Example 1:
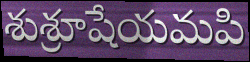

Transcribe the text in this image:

శుశ్రూషేయమపి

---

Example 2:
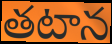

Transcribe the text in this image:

తటాన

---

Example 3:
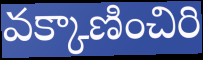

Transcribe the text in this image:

వక్కాణించిరి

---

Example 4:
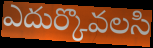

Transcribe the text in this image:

ఎదుర్కొవలసి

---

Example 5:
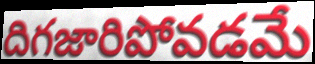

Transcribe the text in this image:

దిగజారిపోవడమే